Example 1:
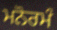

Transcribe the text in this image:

ਮਨੋਰਮੰ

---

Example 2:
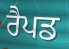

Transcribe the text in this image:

ਰੈਪਡ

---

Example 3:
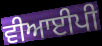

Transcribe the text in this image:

ਵੀਆਈਪੀ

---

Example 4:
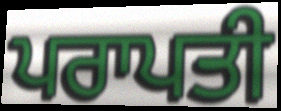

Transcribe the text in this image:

ਪਰਾਪਤੀ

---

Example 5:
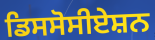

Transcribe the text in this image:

ਡਿਸਸੋਸੀਏਸ਼ਨ